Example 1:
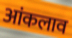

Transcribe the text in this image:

आंकलाव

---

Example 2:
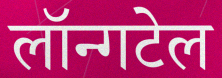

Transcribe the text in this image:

लॉन्गटेल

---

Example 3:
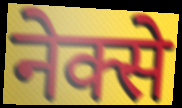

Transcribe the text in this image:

नेक्से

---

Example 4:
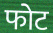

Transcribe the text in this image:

फोट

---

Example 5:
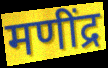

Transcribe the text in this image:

मणींद्र